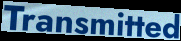
Transmitted